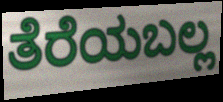
ತೆರೆಯಬಲ್ಲ